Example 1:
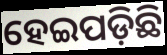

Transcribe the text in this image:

ହେଇପଡ଼ିଛି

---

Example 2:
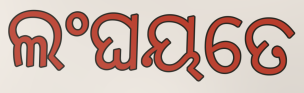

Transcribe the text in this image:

ଲଂଘୟତେ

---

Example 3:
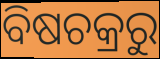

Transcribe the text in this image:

ବିଷଚକ୍ରରୁ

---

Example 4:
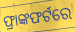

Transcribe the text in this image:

ଫ୍ରାଙ୍କଫର୍ଟରେ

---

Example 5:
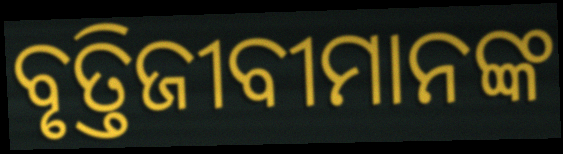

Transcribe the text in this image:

ବୃତ୍ତିଜୀବୀମାନଙ୍କ